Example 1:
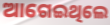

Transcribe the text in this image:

ଆଗେଇଥିଲେ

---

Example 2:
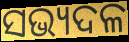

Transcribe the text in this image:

ସଭ୍ୟଦଳ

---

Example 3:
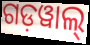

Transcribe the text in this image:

ଗଡ଼ୱାଲ୍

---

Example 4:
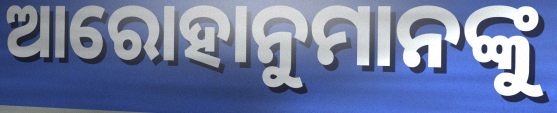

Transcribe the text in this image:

ଆରୋହାନୁମାନଙ୍କୁ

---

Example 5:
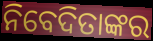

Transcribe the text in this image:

ନିବେଦିତାଙ୍କର